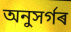
অনুসৰ্গৰ